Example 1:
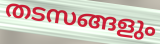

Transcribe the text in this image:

തടസങ്ങളും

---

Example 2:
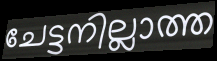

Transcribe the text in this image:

ചേട്ടനില്ലാത്ത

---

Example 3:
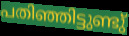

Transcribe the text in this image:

പതിഞ്ഞിട്ടുണ്ടു്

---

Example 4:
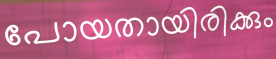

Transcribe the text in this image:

പോയതായിരിക്കും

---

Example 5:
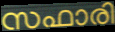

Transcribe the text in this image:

സഫാരി